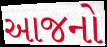
આજનો